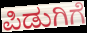
ಪಿಡುಗಿಗೆ